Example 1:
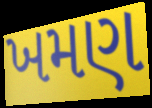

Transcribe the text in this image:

ખમણ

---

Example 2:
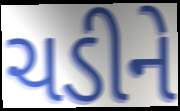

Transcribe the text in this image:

ચડીને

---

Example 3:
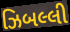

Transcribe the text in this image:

ઝિબલ્લી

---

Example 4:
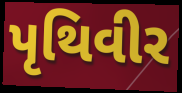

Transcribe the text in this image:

પૃથિવીર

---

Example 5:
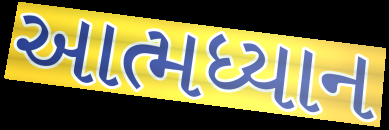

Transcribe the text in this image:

આત્મધ્યાન